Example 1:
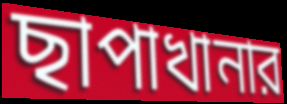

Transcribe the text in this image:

ছাপাখানার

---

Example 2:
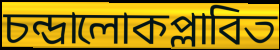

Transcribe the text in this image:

চন্দ্রালোকপ্লাবিত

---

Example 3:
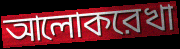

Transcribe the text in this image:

আলোকরেখা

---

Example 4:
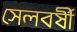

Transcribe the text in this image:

সেলবর্ষী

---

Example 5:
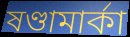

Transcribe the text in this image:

ষণ্ডামার্কা